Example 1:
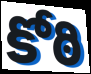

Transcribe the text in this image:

కోఠి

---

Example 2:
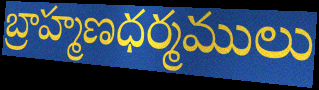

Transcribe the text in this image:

బ్రాహ్మణధర్మములు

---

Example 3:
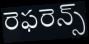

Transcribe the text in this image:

రెఫరెన్స్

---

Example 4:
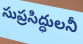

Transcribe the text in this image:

సుప్రసిద్ధులనీ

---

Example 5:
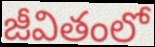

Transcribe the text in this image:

జీవితంలో